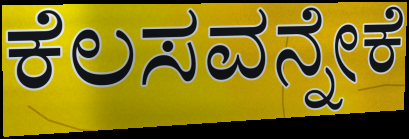
ಕೆಲಸವನ್ನೇಕೆ